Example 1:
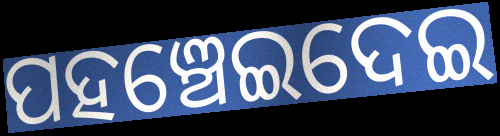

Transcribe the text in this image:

ପହଞ୍ଚେଇଦେଇ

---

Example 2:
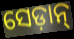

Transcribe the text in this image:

ସେଡ଼ାନ୍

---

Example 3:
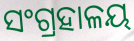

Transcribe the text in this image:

ସଂଗ୍ରହାଳୟ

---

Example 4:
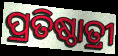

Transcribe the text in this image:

ପ୍ରତିଷ୍ଠାତ୍ରୀ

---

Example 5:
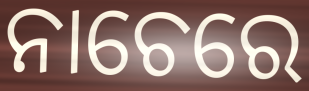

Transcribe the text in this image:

ନାଚେରେ